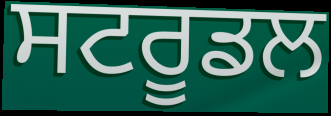
ਸਟਰੂਡਲ